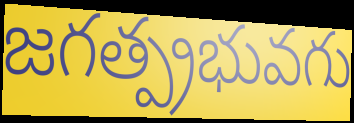
జగత్ప్రభువగు